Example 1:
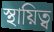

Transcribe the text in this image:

স্থায়িত্ব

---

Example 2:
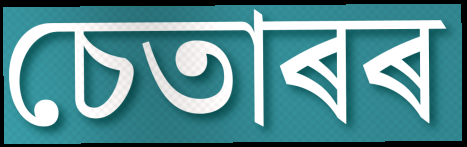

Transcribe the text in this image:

চেতাৰৰ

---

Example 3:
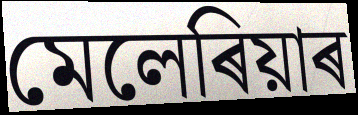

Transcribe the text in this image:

মেলেৰিয়াৰ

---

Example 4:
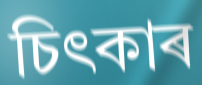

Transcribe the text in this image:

চিৎকাৰ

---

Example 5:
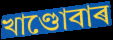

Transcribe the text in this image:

খাণ্ডোবাৰ